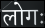
लोगः